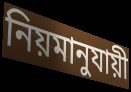
নিয়মানুযায়ী